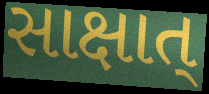
સાક્ષાત્